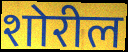
शोरील